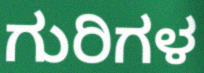
ಗುರಿಗಳ